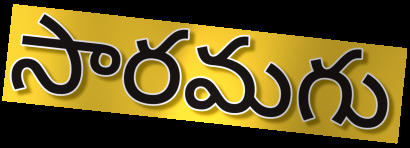
సారమగు